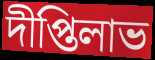
দীপ্তিলাভ